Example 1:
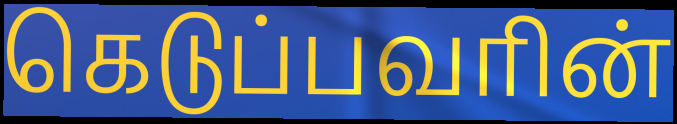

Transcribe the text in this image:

கெடுப்பவரின்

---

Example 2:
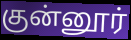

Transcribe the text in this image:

குன்னூர்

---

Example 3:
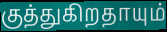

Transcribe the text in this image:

குத்துகிறதாயும்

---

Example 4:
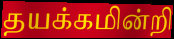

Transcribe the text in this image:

தயக்கமின்றி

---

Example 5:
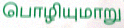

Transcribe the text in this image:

பொழியுமாறு